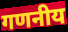
गणनीय